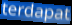
terdapat